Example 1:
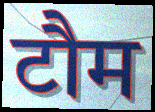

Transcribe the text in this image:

टौम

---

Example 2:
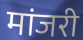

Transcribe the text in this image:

मांजरी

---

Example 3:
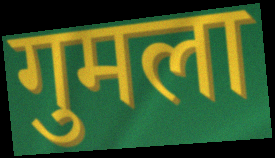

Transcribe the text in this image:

गुमला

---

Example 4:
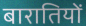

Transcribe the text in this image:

बारातियों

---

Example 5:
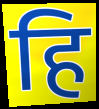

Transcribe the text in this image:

हि